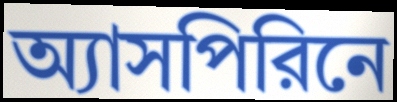
অ্যাসপিরিনে